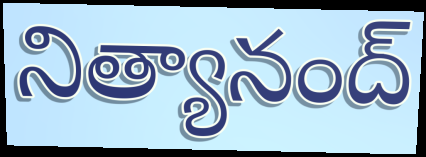
నిత్యానంద్